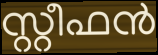
സ്റ്റീഫൻ